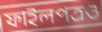
ফাইলপত্রও